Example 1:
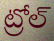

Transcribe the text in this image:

ట్రోల్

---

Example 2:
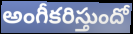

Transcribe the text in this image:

అంగీకరిస్తుందో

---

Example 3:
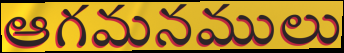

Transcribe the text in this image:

ఆగమనములు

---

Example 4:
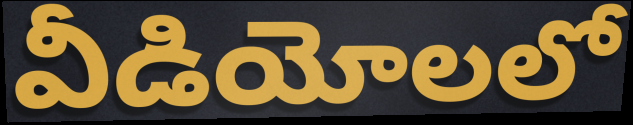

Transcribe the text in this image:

వీడియోలలో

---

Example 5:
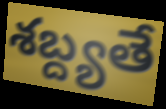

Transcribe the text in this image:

శబ్ద్యతే